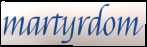
martyrdom